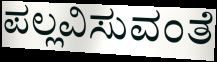
ಪಲ್ಲವಿಸುವಂತೆ